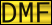
DMF